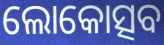
ଲୋକୋତ୍ସବ